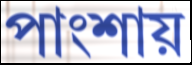
পাংশায়